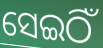
ସେଇଠିଁ